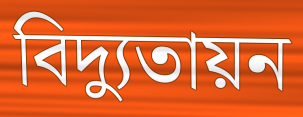
বিদ্যুতায়ন